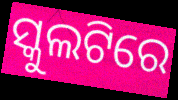
ସ୍କୁଲଟିରେ